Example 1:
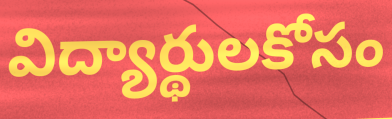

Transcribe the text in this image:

విద్యార్థులకోసం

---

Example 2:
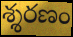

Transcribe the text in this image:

శ్శరణం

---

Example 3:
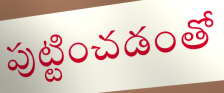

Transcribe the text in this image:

పుట్టించడంతో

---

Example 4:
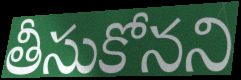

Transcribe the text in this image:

తీసుకోనని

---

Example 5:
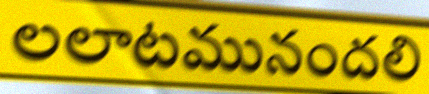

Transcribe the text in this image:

లలాటమునందలి